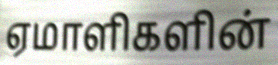
ஏமாளிகளின்